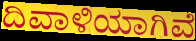
ದಿವಾಳಿಯಾಗಿವೆ